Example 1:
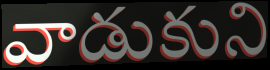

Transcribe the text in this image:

వాడుకుని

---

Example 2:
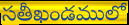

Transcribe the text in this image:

సతీఖండములో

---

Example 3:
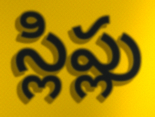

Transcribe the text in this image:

స్లిప్లు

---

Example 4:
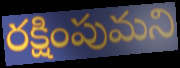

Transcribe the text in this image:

రక్షింపుమని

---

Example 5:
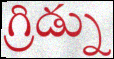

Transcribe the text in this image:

గ్రిడ్ను